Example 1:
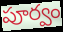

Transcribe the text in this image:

పూర్వం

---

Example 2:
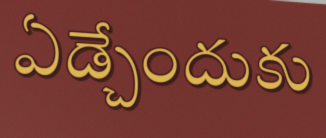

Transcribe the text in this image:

ఏడ్చేందుకు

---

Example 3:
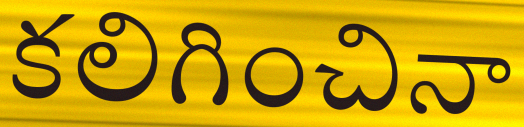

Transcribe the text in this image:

కలిగించినా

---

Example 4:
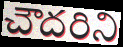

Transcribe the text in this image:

చౌదరిని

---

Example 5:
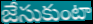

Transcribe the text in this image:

జేసుకుంటా